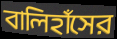
বালিহাঁসের